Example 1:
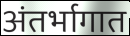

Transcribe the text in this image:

अंतर्भागात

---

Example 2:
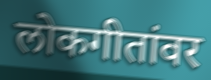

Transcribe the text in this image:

लोकगीतांवर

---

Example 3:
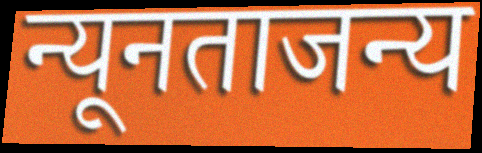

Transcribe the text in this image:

न्यूनताजन्य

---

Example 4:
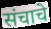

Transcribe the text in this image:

संचाचे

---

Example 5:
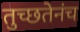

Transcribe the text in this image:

तुच्छतेनंच